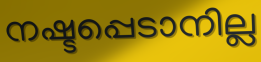
നഷ്ടപ്പെടാനില്ല